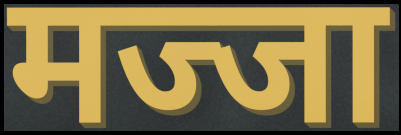
मज्जा